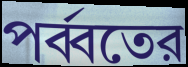
পর্ব্বতের